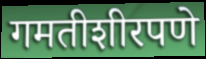
गमतीशीरपणे